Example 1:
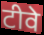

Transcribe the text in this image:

टीवे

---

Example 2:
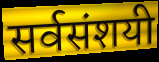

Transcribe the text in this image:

सर्वसंशयी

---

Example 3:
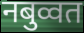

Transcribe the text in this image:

नबुव्वत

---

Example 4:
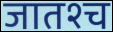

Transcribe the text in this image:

जातश्च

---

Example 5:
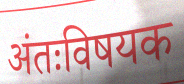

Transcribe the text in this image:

अंतःविषयक